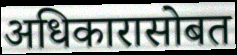
अधिकारासोबत